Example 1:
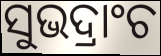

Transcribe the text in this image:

ସୁଭଦ୍ରାଂଚ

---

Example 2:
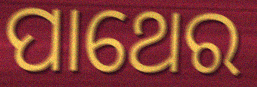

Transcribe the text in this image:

ପାଥେର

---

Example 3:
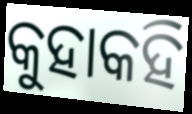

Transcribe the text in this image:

କୁହାକହି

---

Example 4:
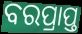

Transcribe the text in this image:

ବରପ୍ରାପ୍ତ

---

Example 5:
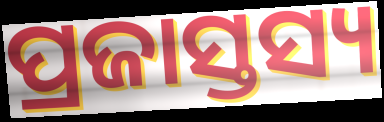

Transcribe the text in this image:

ପ୍ରଜାସ୍ତସ୍ୟ